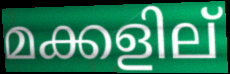
മക്കളില്